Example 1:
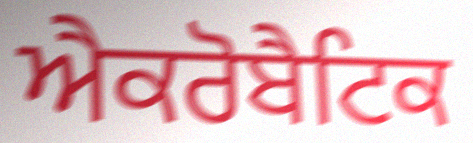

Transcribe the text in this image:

ਐਕਰੋਬੈਟਿਕ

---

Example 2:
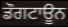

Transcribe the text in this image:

ਡੌਗਟਾਊਨ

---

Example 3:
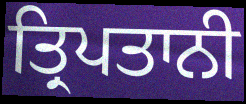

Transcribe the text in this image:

ਤ੍ਰਿਪਤਾਨੀ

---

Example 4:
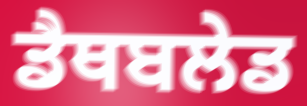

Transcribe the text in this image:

ਡੈਥਬਲੇਡ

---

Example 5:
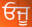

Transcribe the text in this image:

ਓਜੂ